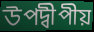
উপদ্বীপীয়